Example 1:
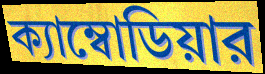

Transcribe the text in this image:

ক্যাম্বোডিয়ার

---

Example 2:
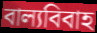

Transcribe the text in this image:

বাল্যবিবাহ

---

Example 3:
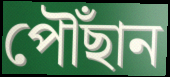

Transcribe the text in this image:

পৌঁছান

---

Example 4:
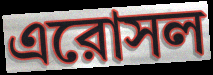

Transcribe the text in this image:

এরোসল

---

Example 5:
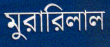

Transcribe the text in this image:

মুরারিলাল